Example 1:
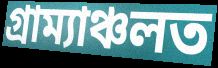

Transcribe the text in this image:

গ্ৰাম্যাঞ্চলত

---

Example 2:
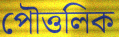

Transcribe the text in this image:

পৌত্তলিক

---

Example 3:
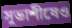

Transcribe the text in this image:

সুভাশীষেও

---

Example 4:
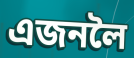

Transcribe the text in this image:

এজনলৈ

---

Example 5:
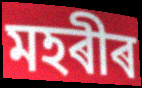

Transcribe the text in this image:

মহৰীৰ